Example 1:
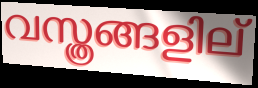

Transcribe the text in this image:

വസ്ത്രങ്ങളില്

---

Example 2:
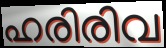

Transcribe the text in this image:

ഹരിരിവ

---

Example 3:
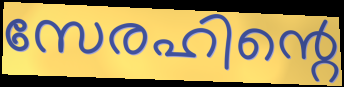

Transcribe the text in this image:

സേരഹിന്റെ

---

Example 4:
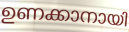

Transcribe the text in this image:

ഉണക്കാനായി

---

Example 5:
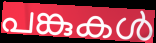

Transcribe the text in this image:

പങ്കുകൾ